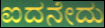
ಐದನೇದು